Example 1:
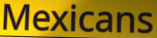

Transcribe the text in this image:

Mexicans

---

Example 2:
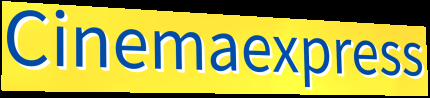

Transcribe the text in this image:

Cinemaexpress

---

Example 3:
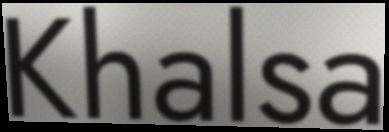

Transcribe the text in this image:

Khalsa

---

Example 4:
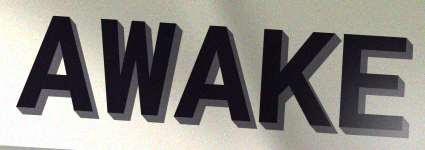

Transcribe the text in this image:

AWAKE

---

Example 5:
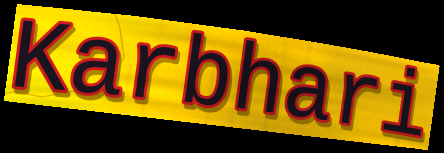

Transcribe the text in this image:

Karbhari